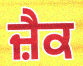
ਜ਼ੈਕ